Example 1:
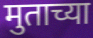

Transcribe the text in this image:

मुताच्या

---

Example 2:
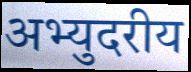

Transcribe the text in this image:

अभ्युदरीय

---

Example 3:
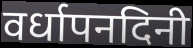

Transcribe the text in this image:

वर्धापनदिनी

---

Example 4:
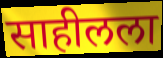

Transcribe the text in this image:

साहीलला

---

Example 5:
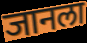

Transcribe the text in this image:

जानला